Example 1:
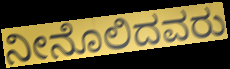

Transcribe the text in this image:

ನೀನೊಲಿದವರು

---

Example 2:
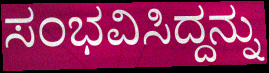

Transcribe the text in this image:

ಸಂಭವಿಸಿದ್ದನ್ನು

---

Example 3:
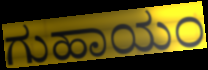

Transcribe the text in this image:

ಗುಹಾಯಂ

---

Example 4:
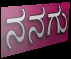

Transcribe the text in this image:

ನನಗು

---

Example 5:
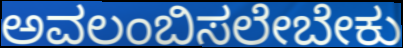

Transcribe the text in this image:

ಅವಲಂಬಿಸಲೇಬೇಕು